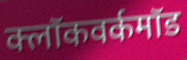
क्लॉकवर्कमॉड